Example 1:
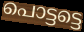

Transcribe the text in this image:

പൊട്ടട്ടെ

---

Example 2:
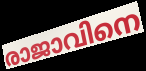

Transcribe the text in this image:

രാജാവിനെ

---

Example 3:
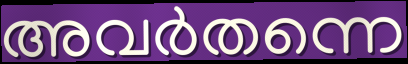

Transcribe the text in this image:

അവർതന്നെ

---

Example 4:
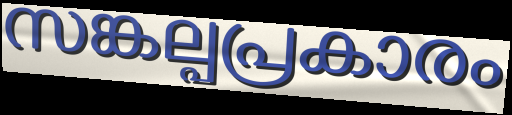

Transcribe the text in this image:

സങ്കല്പപ്രകാരം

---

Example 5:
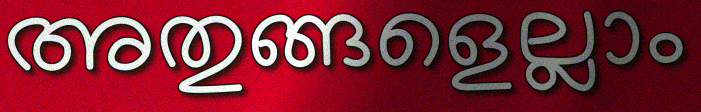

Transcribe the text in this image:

അതുങ്ങളെല്ലാം